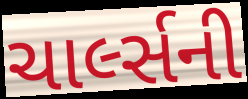
ચાર્લ્સની